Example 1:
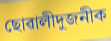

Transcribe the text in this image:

ছোৱালীদুজনীক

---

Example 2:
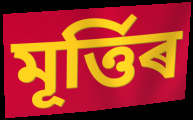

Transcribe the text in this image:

মূৰ্ত্তিৰ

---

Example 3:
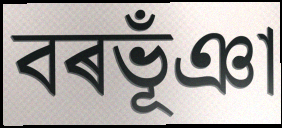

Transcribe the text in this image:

বৰভূঁঞা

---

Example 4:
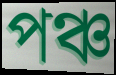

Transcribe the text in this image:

পঞ্চ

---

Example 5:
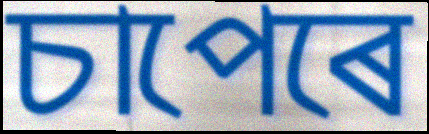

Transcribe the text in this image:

চাপেৰে